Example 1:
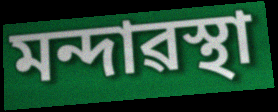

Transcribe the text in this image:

মন্দাৱস্থা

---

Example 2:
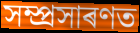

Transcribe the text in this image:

সম্প্ৰসাৰণত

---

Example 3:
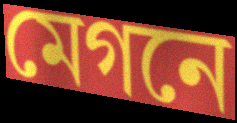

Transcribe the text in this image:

মেগনে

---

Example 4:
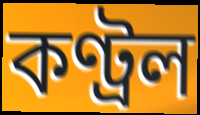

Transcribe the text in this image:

কণ্ট্ৰল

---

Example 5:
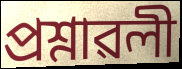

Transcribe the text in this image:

প্ৰশ্নাৱলী